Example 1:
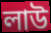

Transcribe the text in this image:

লাউ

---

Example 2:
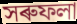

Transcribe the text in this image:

সৰুফলা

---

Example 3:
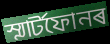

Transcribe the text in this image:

স্মাৰ্টফোনৰ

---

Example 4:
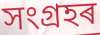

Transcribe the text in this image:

সংগ্ৰহৰ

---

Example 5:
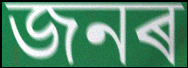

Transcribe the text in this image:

জনৰ